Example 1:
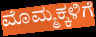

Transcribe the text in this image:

ಮೊಮ್ಮಕ್ಕಳಿಗೆ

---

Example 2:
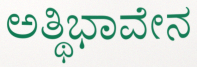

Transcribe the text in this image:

ಅತ್ಥಿಭಾವೇನ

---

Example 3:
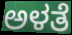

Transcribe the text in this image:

ಅಳತೆ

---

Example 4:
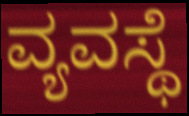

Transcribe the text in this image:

ವ್ಯವಸ್ಥೆ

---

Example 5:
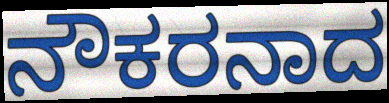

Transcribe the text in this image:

ನೌಕರನಾದ